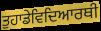
ਤੁਹਾਡੇਵਿਦਿਆਰਥੀ